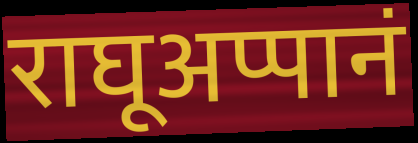
राघूअप्पानं